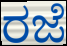
ರಜೆ